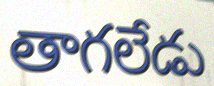
తాగలేడు